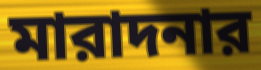
মারাদনার